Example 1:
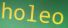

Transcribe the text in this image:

holeo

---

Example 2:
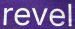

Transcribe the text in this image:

revel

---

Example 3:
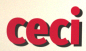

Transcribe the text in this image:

ceci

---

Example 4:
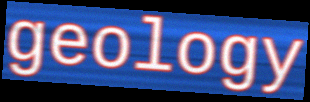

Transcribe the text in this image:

geology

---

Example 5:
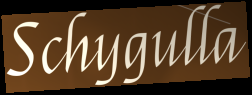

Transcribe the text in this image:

Schygulla